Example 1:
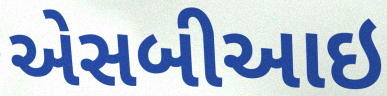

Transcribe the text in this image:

એસબીઆઇ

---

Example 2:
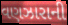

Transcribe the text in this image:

વણઝારાની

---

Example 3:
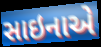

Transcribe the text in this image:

સાઇનાએ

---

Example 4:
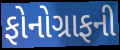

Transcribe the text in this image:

ફોનોગ્રાફની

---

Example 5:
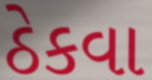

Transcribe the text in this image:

ઠેકવા